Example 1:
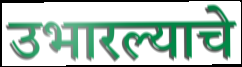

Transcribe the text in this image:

उभारल्याचे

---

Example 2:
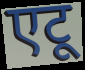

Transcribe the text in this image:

एटू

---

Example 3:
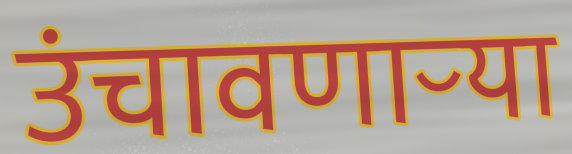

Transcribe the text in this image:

उंचावणाऱ्या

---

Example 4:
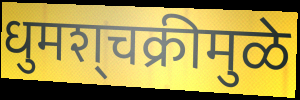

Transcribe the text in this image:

धुमश्चक्रीमुळे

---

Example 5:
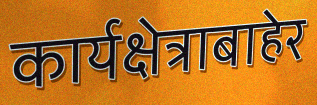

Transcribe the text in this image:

कार्यक्षेत्राबाहेर